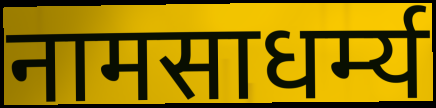
नामसाधर्म्य